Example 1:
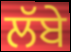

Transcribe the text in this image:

ਲੱਬੇ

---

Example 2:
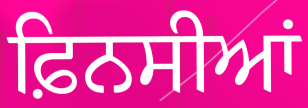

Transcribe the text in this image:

ਫ਼ਿਨਸੀਆਂ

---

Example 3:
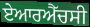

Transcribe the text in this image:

ਏਆਰਐੱਚਸੀ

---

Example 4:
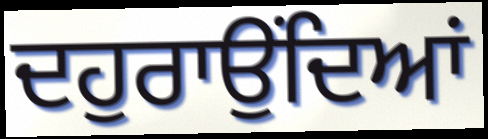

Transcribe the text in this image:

ਦਹੁਰਾਉਂਦਿਆਂ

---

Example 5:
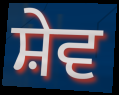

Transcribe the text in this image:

ਸ਼ੇਵ